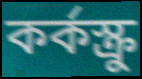
কর্কস্ক্রু